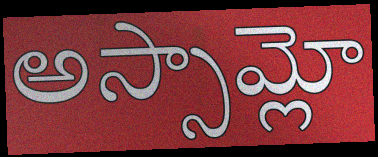
అస్సామ్లో